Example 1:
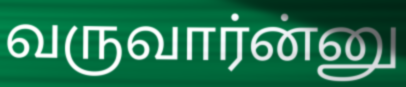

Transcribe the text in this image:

வருவார்ன்னு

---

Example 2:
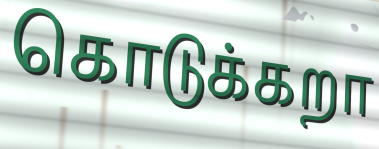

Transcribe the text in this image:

கொடுக்கறா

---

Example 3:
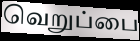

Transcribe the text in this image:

வெறுப்பை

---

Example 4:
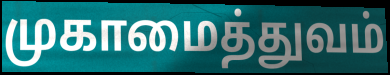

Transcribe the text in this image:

முகாமைத்துவம்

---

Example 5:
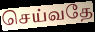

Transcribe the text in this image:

செய்வதே